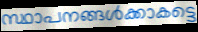
സ്ഥാപനങ്ങൾക്കാകട്ടെ